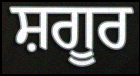
ਸ਼ਗੂਰ